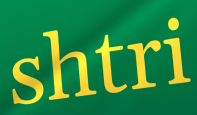
shtri